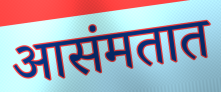
आसंमतात